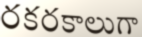
రకరకాలుగా